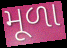
મૂળા